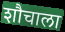
शौचाला